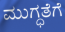
ಮುಗ್ಧತೆಗೆ